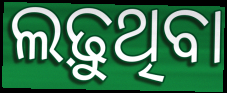
ଲଢ଼ୁଥିବା